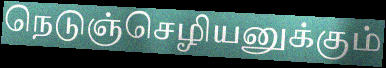
நெடுஞ்செழியனுக்கும்